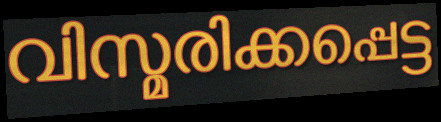
വിസ്മരിക്കപ്പെട്ട